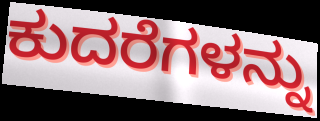
ಕುದರೆಗಳನ್ನು